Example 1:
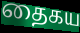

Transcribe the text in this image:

தைகய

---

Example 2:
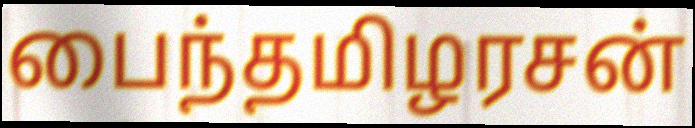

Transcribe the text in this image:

பைந்தமிழரசன்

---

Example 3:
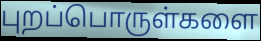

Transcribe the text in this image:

புறப்பொருள்களை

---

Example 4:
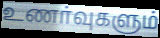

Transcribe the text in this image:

உணர்வுகளும்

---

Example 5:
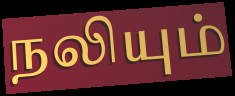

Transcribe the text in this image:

நலியும்